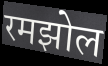
रमझोल